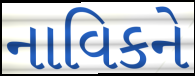
નાવિકને